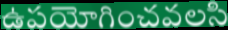
ఉపయోగించవలసి